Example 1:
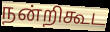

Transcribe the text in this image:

நன்றிகூட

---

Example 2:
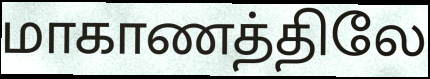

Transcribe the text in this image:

மாகாணத்திலே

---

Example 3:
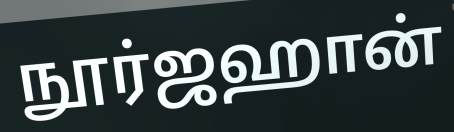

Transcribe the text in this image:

நூர்ஜஹான்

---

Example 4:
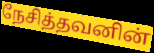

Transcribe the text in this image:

நேசித்தவனின்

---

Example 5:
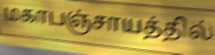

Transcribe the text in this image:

மகாபஞ்சாயத்தில்